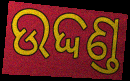
ଉଦ୍ଦଣ୍ଡ